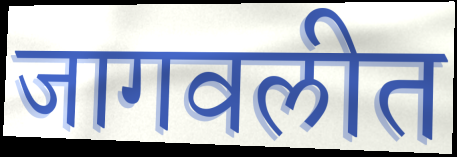
जागवलीत